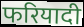
फरियादी